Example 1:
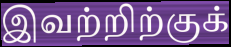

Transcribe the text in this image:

இவற்றிற்குக்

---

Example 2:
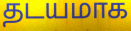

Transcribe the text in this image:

தடயமாக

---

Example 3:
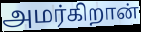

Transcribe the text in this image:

அமர்கிறான்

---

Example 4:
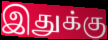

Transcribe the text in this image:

இதுக்கு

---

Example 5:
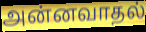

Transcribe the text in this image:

அன்னவாதல்